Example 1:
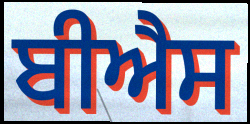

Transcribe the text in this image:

ਬੀਐਸ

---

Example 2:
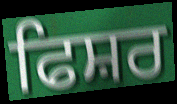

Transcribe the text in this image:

ਫਿਸ਼ਰ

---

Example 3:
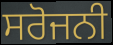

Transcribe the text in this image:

ਸਰੋਜਨੀ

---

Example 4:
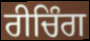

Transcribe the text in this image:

ਰੀਚਿੰਗ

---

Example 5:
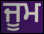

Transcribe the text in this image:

ਜੂਮ